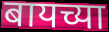
बायच्या